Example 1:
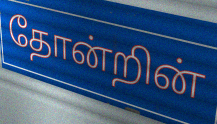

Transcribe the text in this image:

தோன்றின்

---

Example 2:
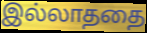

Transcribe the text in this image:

இல்லாததை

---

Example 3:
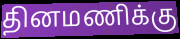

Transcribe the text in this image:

தினமணிக்கு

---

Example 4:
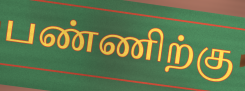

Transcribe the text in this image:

பண்ணிற்கு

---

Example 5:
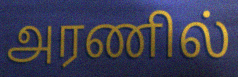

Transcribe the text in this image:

அரணில்